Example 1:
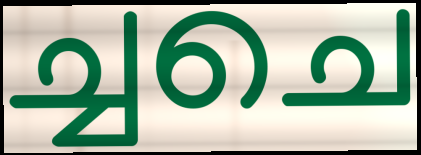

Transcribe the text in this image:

ച്ചചെ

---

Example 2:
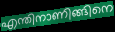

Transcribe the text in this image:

എന്തിനാണിങ്ങിനെ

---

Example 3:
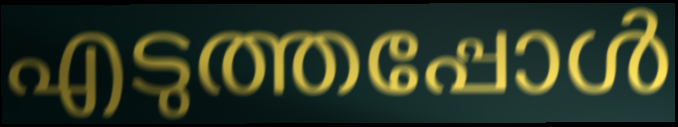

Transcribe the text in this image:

എടുത്തപ്പോൾ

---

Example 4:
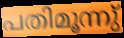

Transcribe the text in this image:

പതിമൂന്നു്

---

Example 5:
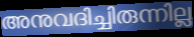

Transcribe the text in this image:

അനുവദിച്ചിരുന്നില്ല